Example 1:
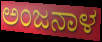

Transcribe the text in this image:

ಅಂಜನಾಳ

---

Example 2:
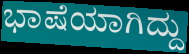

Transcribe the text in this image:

ಭಾಷೆಯಾಗಿದ್ದು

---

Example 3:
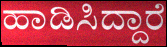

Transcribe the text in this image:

ಹಾಡಿಸಿದ್ದಾರೆ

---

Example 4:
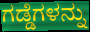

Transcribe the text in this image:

ಗಡ್ಡೆಗಳನ್ನು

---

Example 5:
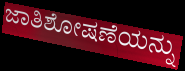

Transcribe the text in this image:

ಜಾತಿಶೋಷಣೆಯನ್ನು